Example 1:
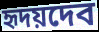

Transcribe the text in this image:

হৃদয়দেব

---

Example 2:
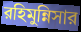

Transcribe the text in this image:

রহিমুন্নিসার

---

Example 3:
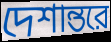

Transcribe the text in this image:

দেশান্তরে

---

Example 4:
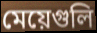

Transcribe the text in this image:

মেয়েগুলি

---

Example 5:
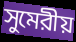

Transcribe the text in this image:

সুমেরীয়